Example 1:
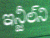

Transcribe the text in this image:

ఇన్జీల్‌ని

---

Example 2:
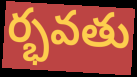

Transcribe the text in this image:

ర్భవతు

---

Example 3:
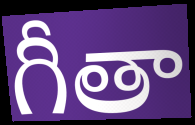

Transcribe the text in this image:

గీతా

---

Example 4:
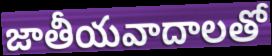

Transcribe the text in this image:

జాతీయవాదాలతో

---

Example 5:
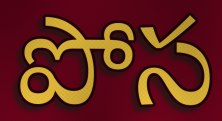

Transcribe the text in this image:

పోస